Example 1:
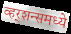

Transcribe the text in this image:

व्हर्शन्समध्ये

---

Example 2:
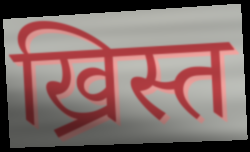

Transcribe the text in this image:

ख्रिस्त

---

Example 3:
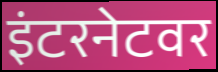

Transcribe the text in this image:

इंटरनेटवर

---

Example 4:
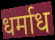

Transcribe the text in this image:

धर्माध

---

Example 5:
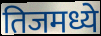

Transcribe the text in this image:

तिजमध्ये